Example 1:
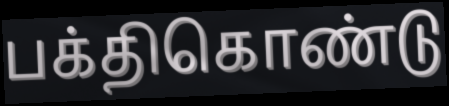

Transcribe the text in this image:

பக்திகொண்டு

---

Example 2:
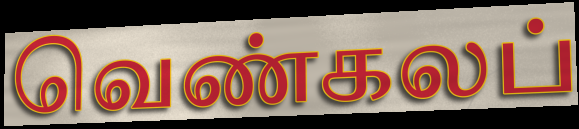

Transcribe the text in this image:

வெண்கலப்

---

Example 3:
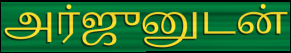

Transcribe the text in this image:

அர்ஜுனுடன்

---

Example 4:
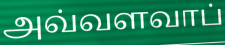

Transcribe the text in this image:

அவ்வளவாப்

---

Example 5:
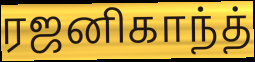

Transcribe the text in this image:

ரஜனிகாந்த்